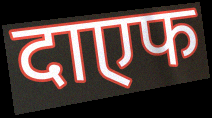
दाएफ